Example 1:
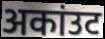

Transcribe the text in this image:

अकांउट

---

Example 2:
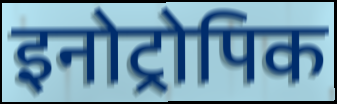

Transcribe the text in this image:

इनोट्रोपिक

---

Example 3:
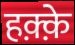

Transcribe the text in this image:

हक़्क़े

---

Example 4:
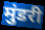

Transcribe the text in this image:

मुंडरी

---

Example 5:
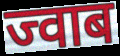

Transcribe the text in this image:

ज्वाब